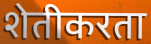
शेतीकरता